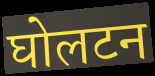
घोलटन